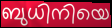
ബുധിനിയെ